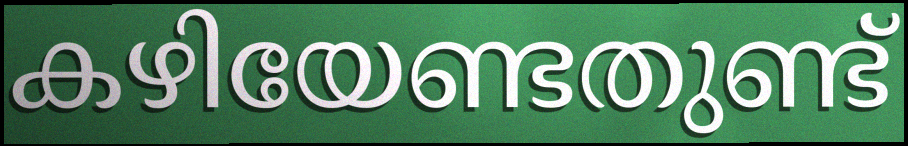
കഴിയേണ്ടതുണ്ട്